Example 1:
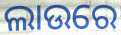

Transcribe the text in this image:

ଲାଉରେ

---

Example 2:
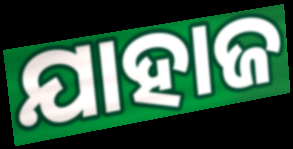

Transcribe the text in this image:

ଯାହାଜ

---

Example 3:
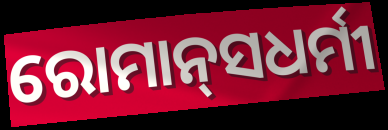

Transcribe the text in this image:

ରୋମାନ୍‍ସଧର୍ମୀ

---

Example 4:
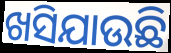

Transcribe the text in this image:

ଖସିଯାଉଛି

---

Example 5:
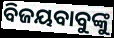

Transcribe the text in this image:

ବିଜୟବାବୁଙ୍କୁ